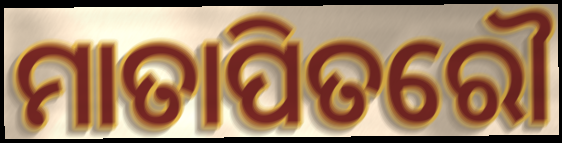
ମାତାପିତରୌ